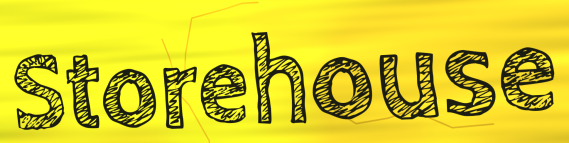
Storehouse